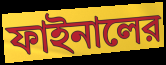
ফাইনালের